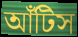
আঁটিস